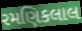
રમણિકલાલ